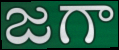
జగా